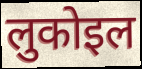
लुकोइल